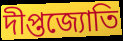
দীপ্তজ্যোতি